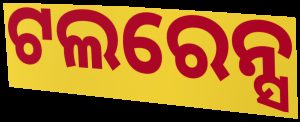
ଟଲରେନ୍ସ